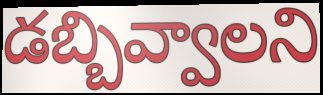
డబ్బివ్వాలని